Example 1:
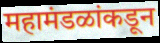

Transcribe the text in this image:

महामंडळांकडून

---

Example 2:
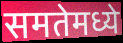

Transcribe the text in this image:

समतेमध्ये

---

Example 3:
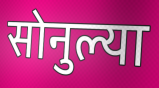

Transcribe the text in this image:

सोनुल्या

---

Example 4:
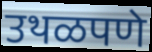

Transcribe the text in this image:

उथळपणे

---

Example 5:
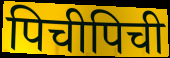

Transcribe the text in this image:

पिचीपिची